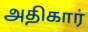
அதிகார்